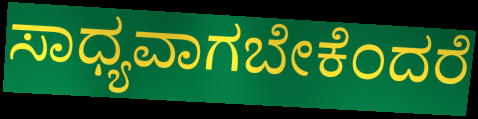
ಸಾಧ್ಯವಾಗಬೇಕೆಂದರೆ